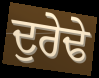
ਦੁਰੇਢੇ